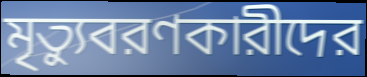
মৃত্যুবরণকারীদের